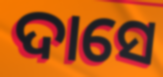
ଦାସେ